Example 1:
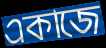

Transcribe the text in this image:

একাজে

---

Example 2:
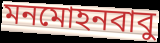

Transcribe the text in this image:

মনমোহনবাবু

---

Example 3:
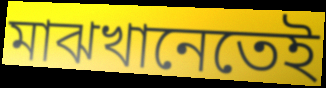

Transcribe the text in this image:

মাঝখানেতেই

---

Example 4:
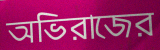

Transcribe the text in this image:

অভিরাজের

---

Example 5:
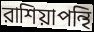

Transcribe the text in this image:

রাশিয়াপন্থি